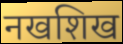
नखशिख